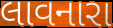
લાવનારા